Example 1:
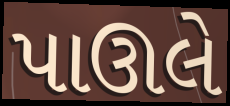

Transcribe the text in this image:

પાઊલે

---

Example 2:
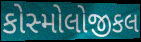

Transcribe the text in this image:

કોસ્મોલોજીકલ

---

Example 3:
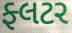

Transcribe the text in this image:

ફ્લટર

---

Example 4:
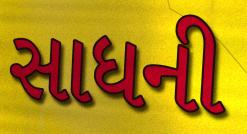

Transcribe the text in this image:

સાધની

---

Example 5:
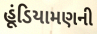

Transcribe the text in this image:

હૂંડિયામણની